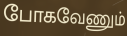
போகவேணும்